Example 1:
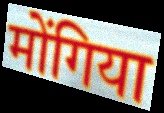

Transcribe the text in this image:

मोंगिया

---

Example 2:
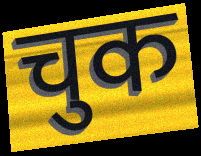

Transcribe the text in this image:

चुक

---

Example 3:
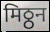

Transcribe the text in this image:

मिठ्ठन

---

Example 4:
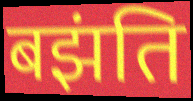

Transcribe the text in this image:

बझंति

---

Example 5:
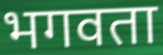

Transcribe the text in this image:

भगवता